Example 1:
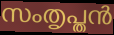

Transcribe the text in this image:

സംതൃപ്തൻ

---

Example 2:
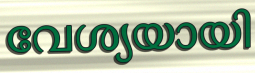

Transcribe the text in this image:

വേശ്യയായി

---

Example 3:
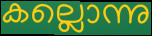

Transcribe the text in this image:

കല്ലൊന്നു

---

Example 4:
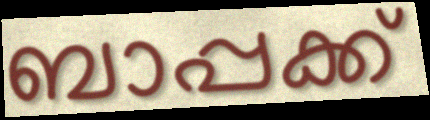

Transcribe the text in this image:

ബാപ്പക്ക്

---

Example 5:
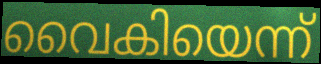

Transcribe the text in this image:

വൈകിയെന്ന്